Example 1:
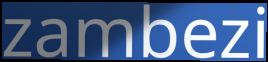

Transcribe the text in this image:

zambezi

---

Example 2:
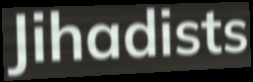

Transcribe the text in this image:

Jihadists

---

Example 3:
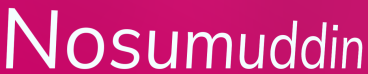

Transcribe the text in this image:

Nosumuddin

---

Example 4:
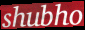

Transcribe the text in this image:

shubho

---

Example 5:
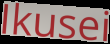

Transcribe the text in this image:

Ikusei